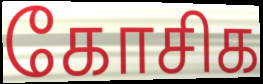
கோசிக